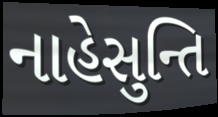
નાહેસુન્તિ